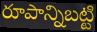
రూపాన్నిబట్టి